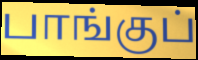
பாங்குப்